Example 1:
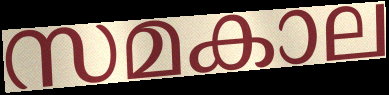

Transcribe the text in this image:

സമകാല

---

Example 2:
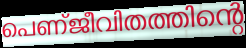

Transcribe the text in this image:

പെണ്ജീവിതത്തിന്റെ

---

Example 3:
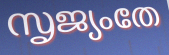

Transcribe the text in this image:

സൃജ്യംതേ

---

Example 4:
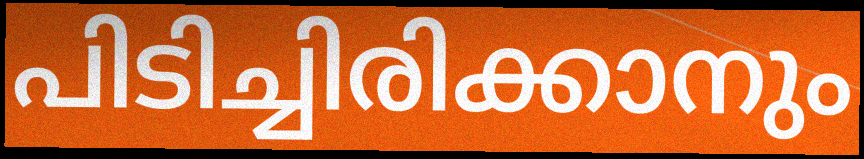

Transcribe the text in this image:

പിടിച്ചിരിക്കാനും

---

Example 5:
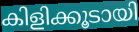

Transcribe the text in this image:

കിളിക്കൂടായി